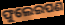
ଫୁଲେଇପଣ